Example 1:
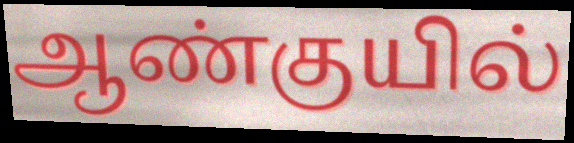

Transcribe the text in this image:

ஆண்குயில்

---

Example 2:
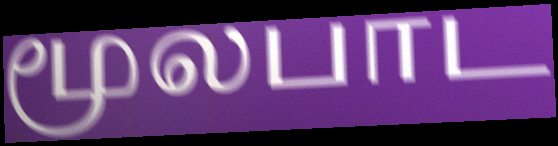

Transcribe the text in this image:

மூலபாட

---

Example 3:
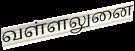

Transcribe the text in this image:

வள்ளலுனை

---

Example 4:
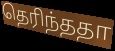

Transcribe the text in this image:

தெரிந்ததா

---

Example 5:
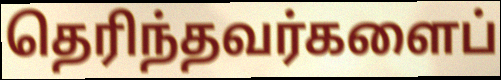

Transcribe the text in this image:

தெரிந்தவர்களைப்